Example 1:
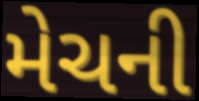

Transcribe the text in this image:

મેચની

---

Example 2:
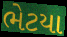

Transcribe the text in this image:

ભેટયા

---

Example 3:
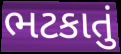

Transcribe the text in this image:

ભટકાતું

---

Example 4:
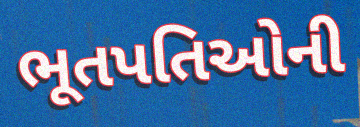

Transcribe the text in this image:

ભૂતપતિઓની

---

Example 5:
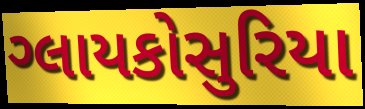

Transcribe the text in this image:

ગ્લાયકોસુરિયા